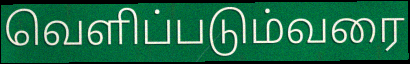
வெளிப்படும்வரை